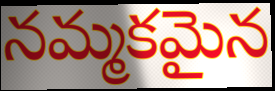
నమ్మకమైన